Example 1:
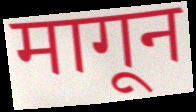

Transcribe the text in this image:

मागून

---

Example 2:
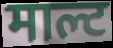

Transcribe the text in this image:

माल्ट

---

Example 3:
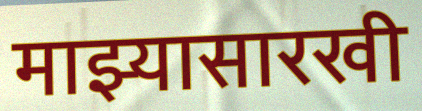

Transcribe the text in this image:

माझ्यासारखी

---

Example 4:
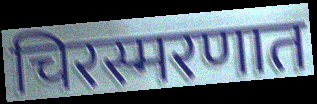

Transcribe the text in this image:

चिरस्मरणात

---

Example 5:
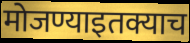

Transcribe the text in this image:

मोजण्याइतक्याच